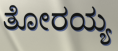
ತೋರಯ್ಯ